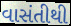
વાસંતીથી